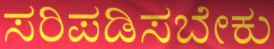
ಸರಿಪಡಿಸಬೇಕು